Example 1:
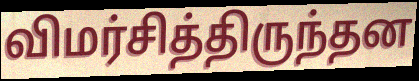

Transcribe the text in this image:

விமர்சித்திருந்தன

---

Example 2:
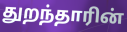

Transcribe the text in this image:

துறந்தாரின்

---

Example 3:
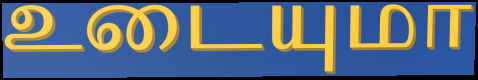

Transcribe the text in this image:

உடையுமா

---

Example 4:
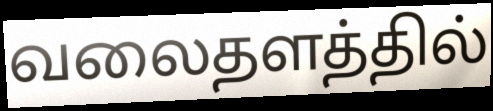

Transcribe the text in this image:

வலைதளத்தில்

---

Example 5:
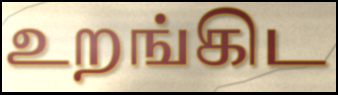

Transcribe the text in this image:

உறங்கிட